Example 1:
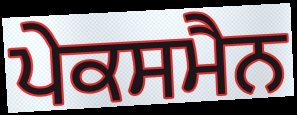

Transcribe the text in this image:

ਪੇਕਸਮੈਨ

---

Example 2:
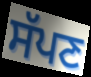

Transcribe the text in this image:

ਸੱਪਣ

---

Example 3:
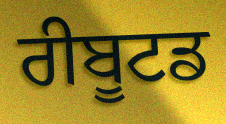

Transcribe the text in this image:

ਰੀਬੂਟਡ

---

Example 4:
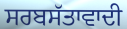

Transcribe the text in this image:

ਸਰਬਸੱਤਾਵਾਦੀ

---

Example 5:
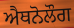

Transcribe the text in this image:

ਐਥਨੋਲੌਗ